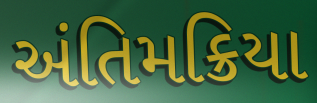
અંતિમક્રિયા